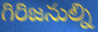
గిరిజనుల్ని